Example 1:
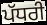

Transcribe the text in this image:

ਪੱਧਰੀ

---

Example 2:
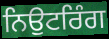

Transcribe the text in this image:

ਨਿਉਟਰਿੰਗ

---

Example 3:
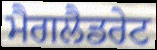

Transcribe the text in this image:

ਮੈਗਲੈਡਰੇਟ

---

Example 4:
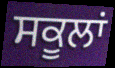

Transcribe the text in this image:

ਸਕੂਲਾਂ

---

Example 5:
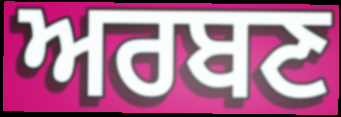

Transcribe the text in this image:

ਅਰਬਣ